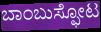
ಬಾಂಬುಸ್ಫೋಟ